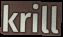
krill